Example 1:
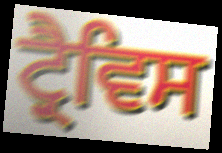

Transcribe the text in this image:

ਟ੍ਰੈਵਿਸ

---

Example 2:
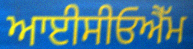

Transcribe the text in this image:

ਆਈਸੀਓਐੱਮ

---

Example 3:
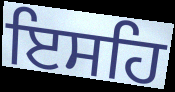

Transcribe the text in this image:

ਇਸਹਿ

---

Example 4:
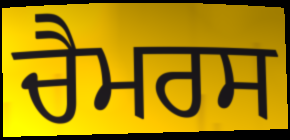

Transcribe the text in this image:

ਚੈਮਰਸ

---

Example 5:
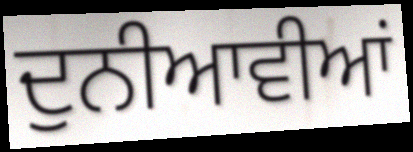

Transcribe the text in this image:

ਦੁਨੀਆਵੀਆਂ